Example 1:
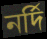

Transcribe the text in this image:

নর্দি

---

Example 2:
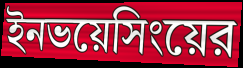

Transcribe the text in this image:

ইনভয়েসিংয়ের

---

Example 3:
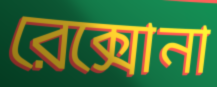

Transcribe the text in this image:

রেক্সোনা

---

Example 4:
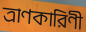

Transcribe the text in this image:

ত্রাণকারিণী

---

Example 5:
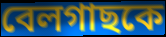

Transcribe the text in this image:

বেলগাছকে